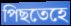
পিছতেহে